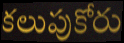
కలుపుకోరు